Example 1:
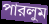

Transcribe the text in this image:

পারলুম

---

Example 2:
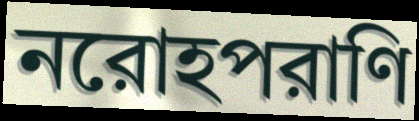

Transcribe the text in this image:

নরোহপরাণি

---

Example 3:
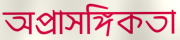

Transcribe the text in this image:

অপ্রাসঙ্গিকতা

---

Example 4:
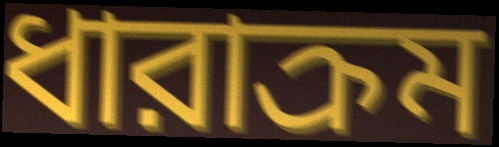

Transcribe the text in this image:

ধারাক্রম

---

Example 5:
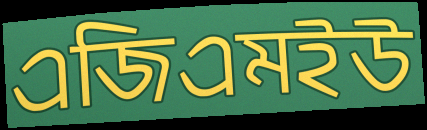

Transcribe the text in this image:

এজিএমইউ